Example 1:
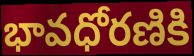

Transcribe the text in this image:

భావధోరణికి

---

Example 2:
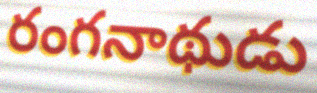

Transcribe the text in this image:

రంగనాథుడు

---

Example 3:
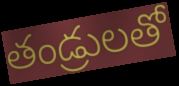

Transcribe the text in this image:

తండ్రులతో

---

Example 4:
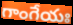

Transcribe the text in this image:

గాంగేయః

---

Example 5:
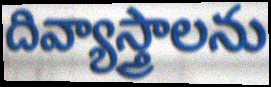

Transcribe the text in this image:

దివ్యాస్త్రాలను